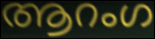
ആറംഗ